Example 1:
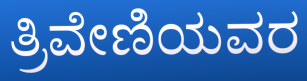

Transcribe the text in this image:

ತ್ರಿವೇಣಿಯವರ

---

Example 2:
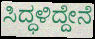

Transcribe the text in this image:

ಸಿದ್ಧಳಿದ್ದೇನೆ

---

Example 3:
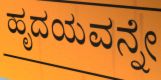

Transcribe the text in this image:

ಹೃದಯವನ್ನೇ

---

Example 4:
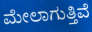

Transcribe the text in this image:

ಮೇಲಾಗುತ್ತಿವೆ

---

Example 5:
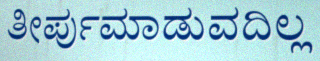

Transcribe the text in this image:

ತೀರ್ಪುಮಾಡುವದಿಲ್ಲ